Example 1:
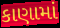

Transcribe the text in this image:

કાણામાં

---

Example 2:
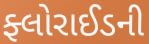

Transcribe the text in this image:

ફ્લોરાઈડની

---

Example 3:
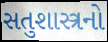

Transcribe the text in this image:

સતુશાસ્ત્રનો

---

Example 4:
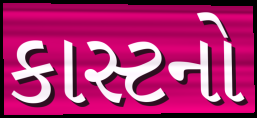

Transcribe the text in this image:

કાસ્ટનો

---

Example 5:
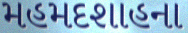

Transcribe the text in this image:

મહમદશાહના